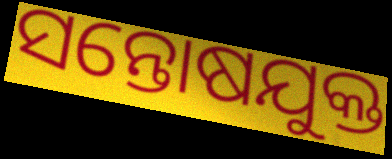
ସନ୍ତୋଷଯୁକ୍ତ